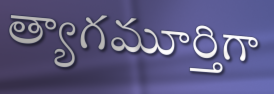
త్యాగమూర్తిగా